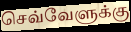
செவ்வேளுக்கு